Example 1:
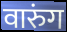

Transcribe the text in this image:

वारुंग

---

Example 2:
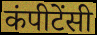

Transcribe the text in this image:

कंपीटेंसी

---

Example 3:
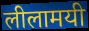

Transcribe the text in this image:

लीलामयी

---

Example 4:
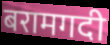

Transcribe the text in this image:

बरामगदी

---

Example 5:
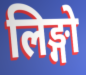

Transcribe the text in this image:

लिङ्गो